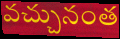
వచ్చునంత